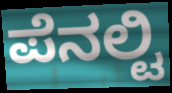
ಪೆನಲ್ಟಿ